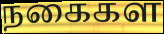
நகைகள